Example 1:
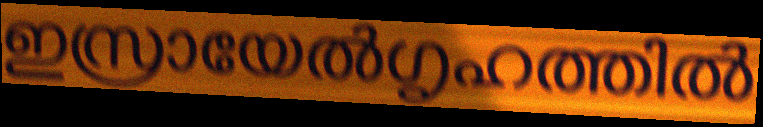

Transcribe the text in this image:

ഇസ്രായേൽഗൃഹത്തിൽ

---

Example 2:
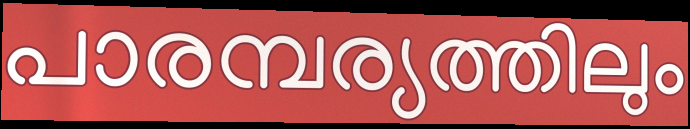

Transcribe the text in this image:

പാരമ്പര്യത്തിലും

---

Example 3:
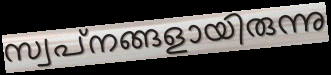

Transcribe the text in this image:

സ്വപ്‌നങ്ങളായിരുന്നു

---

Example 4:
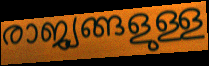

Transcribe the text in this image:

രാജ്യങ്ങളുള്ള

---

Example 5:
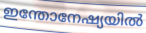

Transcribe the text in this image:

ഇന്തോനേഷ്യയിൽ